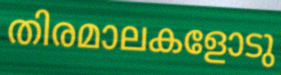
തിരമാലകളോടു